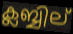
ക്ലബ്ബില്